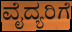
ವೈದ್ಯರಿಗೆ